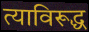
त्याविरूद्ध